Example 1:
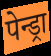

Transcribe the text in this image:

पेन्ड्रा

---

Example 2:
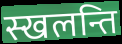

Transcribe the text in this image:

स्खलन्ति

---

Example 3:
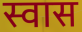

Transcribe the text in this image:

स्वास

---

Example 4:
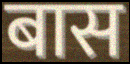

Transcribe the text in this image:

बास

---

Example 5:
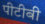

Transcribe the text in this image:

पीटीबी